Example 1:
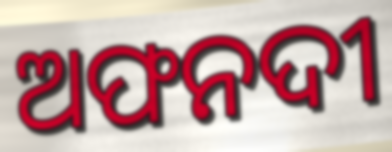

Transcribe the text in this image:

ଅଫନଦୀ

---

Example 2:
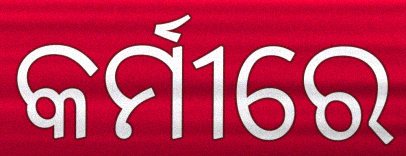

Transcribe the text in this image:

କର୍ମୀରେ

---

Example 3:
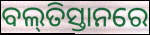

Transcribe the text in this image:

ବଲ୍‌ତିସ୍ତାନରେ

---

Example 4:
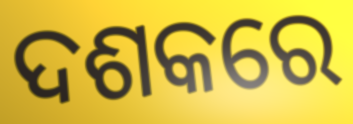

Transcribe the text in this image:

ଦଶକରେ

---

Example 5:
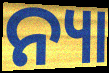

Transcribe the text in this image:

ନ୍ୟା